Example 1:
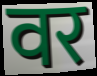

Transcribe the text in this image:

वर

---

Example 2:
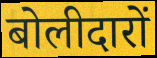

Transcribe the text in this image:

बोलीदारों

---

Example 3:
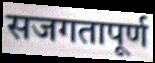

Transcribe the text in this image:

सजगतापूर्ण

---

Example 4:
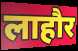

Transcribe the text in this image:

लाहौर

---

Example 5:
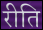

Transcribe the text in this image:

रीति